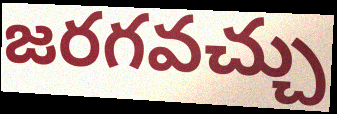
జరగవచ్చు